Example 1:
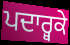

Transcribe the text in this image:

ਪਦਾਰ੍ਥਕੇ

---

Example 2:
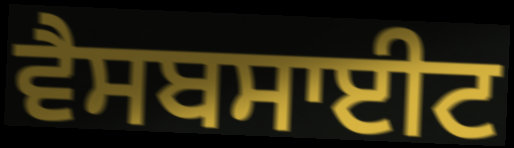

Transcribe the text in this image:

ਵੈਸਬਸਾਈਟ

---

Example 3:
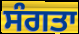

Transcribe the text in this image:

ਸੰਗਤਾ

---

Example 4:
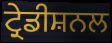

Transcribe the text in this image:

ਟ੍ਰੇਡੀਸ਼ਨਲ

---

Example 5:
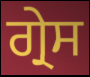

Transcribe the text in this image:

ਗ੍ਰੇਸ